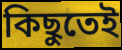
কিছুতেই